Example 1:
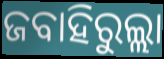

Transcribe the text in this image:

ଜବାହିରୁଲ୍ଲା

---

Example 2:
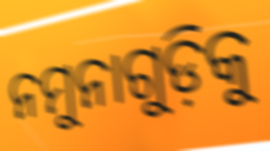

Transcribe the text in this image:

ନମୁନାଗୁଡ଼ିକୁ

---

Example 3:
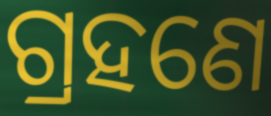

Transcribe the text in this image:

ଗ୍ରହଣେ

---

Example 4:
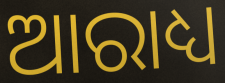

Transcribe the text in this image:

ଆରାଧ୍ୟ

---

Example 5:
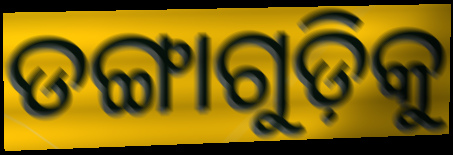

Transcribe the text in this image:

ଡଙ୍ଗାଗୁଡ଼ିକୁ